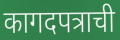
कागदपत्राची